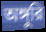
অঙ্গুরি